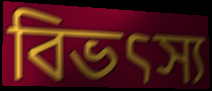
বিভৎস্য